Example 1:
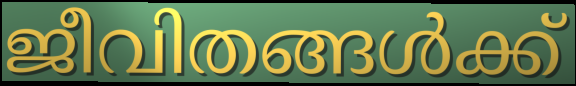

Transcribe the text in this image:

ജീവിതങ്ങൾക്ക്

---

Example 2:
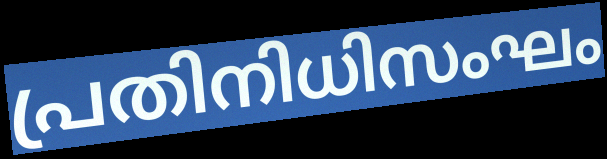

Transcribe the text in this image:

പ്രതിനിധിസംഘം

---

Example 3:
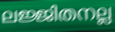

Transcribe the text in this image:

ലജ്ജിതനല്ല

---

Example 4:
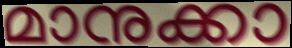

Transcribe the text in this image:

മാനുക്കാ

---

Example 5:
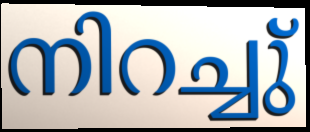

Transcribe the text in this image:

നിറച്ചു്